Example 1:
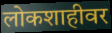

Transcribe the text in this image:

लोकशाहीवर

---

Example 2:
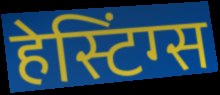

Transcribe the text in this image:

हेस्टिंग्स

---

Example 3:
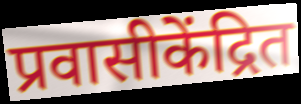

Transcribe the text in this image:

प्रवासीकेंद्रित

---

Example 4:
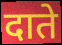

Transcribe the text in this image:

दाते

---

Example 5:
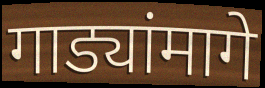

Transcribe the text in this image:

गाड्यांमागे